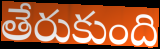
తేరుకుంది